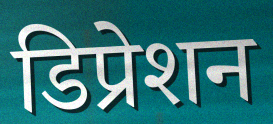
डिप्रेशन